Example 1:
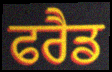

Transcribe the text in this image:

ਫਰੈਡ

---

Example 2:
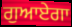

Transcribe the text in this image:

ਗੁਆਏਗਾ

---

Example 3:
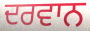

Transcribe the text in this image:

ਦਰਵਾਨ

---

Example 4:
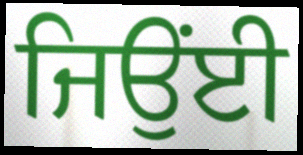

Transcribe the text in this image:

ਜਿਉਂਈ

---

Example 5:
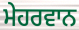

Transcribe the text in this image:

ਮੇਹਰਵਾਨ